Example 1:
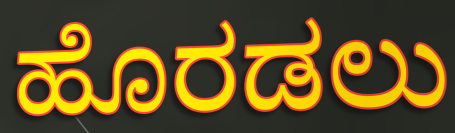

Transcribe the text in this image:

ಹೊರಡಲು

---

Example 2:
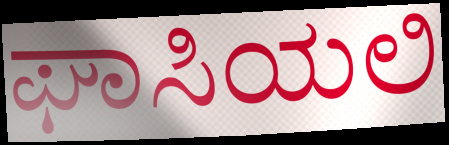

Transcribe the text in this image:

ಘಾಸಿಯಲಿ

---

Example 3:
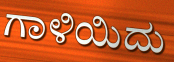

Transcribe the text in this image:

ಗಾಳಿಯಿದು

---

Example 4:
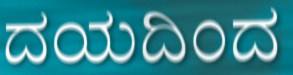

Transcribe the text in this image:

ದಯದಿಂದ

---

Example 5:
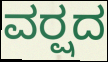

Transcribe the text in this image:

ವರ್‍ಷದ